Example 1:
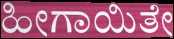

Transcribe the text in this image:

ಹೀಗಾಯಿತೇ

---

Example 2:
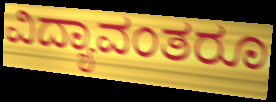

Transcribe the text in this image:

ವಿದ್ಯಾವಂತರೂ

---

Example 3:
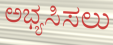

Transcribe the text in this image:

ಅಭ್ಯಸಿಸಲು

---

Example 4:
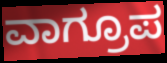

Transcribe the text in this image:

ವಾಗ್ರೂಪ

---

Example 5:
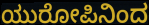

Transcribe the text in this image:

ಯುರೋಪಿನಿಂದ